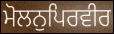
ਮੋਲਨੁਪਿਰਵੀਰ